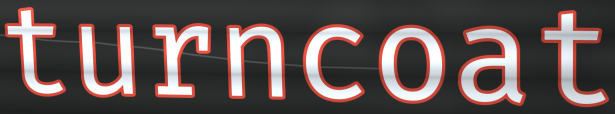
turncoat